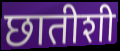
छातीशी